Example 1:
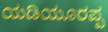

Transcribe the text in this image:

ಯಡಿಯೂರಪ್ಪ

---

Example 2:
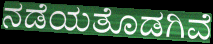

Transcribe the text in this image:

ನಡೆಯತೊಡಗಿವೆ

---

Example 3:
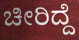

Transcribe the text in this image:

ಚೀರಿದ್ದೆ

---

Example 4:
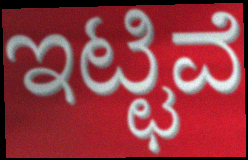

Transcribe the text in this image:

ಇಟ್ಟಿವೆ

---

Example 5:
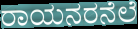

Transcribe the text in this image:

ರಾಯನರನೆಲೆ